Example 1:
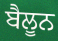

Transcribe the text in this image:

ਬੈਲੂਨ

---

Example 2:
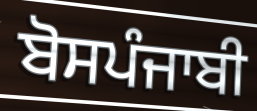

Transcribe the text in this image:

ਬੋਸਪੰਜਾਬੀ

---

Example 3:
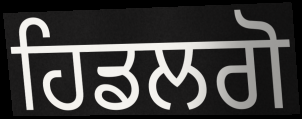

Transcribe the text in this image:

ਹਿਡਲਗੋ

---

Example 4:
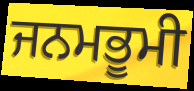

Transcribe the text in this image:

ਜਨਮਭੂਮੀ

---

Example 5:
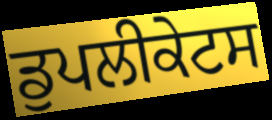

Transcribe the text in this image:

ਡੁਪਲੀਕੇਟਸ